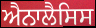
ਐਨਾਲੈਸਿਸ